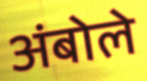
अंबोले